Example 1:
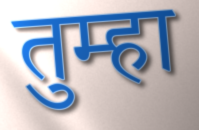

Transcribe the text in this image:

तुम्हा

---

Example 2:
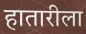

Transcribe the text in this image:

हातारीला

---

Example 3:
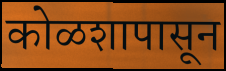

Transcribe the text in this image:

कोळशापासून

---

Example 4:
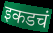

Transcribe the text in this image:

इकडचं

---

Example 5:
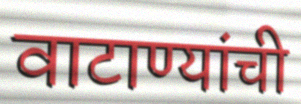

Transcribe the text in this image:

वाटाण्यांची